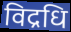
विद्रधि